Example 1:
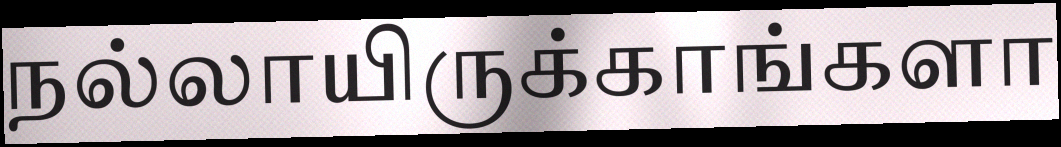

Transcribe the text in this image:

நல்லாயிருக்காங்களா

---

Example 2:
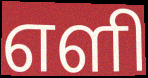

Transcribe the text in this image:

எளி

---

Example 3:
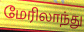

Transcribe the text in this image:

மேரிலாந்து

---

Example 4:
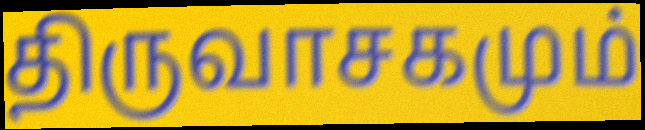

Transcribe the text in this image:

திருவாசகமும்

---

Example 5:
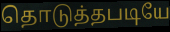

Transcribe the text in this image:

தொடுத்தபடியே